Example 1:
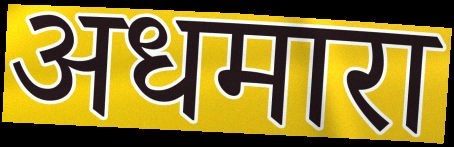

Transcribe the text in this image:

अधमारा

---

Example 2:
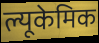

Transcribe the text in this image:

ल्यूकेमिक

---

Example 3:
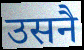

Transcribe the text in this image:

उसनै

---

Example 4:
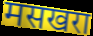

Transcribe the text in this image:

मसखरा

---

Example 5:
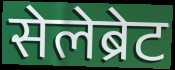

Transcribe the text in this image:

सेलेब्रेट